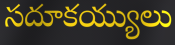
సదూకయ్యులు